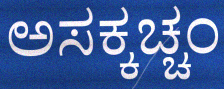
ಅಸಕ್ಕಚ್ಚಂ